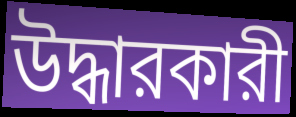
উদ্ধারকারী